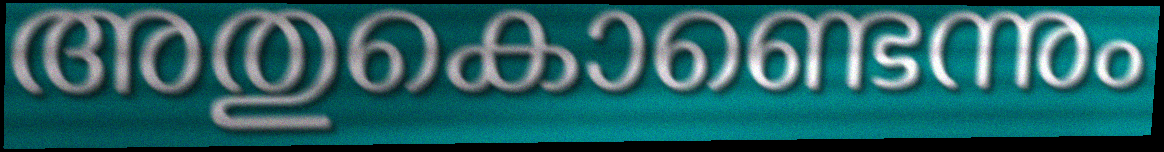
അതുകൊണ്ടെന്നും